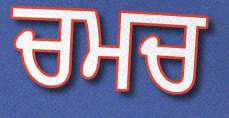
ਚਮਚ